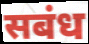
सबंध